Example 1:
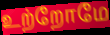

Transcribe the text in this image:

உற்றோமே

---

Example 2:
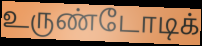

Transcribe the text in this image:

உருண்டோடிக்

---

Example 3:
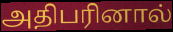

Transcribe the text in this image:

அதிபரினால்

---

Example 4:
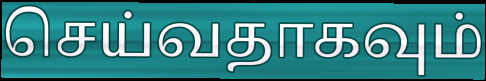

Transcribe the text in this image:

செய்வதாகவும்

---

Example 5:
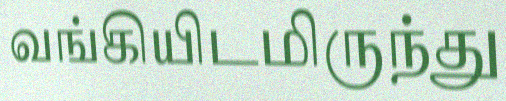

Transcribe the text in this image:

வங்கியிடமிருந்து